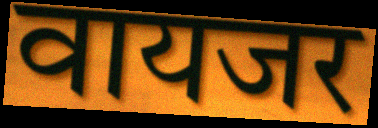
वायजर